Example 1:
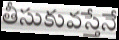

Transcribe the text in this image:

తీసుకువస్తేనే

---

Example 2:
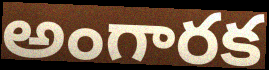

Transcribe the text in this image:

అంగారక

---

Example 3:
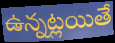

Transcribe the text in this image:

ఉన్నట్లయితే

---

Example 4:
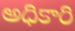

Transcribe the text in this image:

అధికారి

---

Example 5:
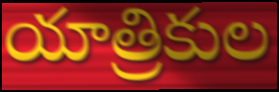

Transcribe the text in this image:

యాత్రికుల